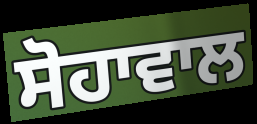
ਸੋਹਾਵਾਲ